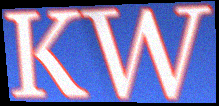
KW